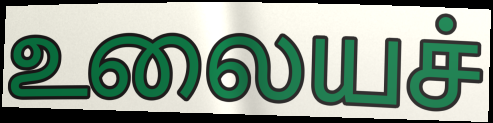
உலையச்